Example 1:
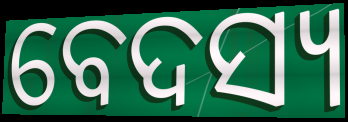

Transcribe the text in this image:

ବେଦସ୍ୟ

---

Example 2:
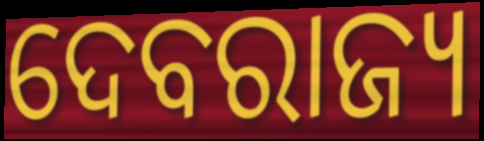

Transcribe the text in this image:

ଦେବରାଜ୍ୟ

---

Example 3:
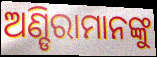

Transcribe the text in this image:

ଅଣ୍ଡିରାମାନଙ୍କୁ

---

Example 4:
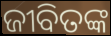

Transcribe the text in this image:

ଜୀବିତଙ୍କ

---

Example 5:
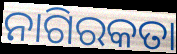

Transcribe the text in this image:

ନାଗିରକତା